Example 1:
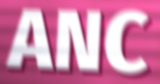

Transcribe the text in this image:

ANC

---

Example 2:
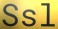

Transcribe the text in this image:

Ssl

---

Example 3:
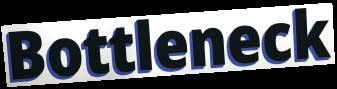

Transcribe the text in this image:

Bottleneck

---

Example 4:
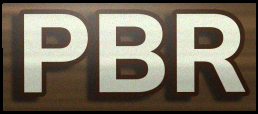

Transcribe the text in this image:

PBR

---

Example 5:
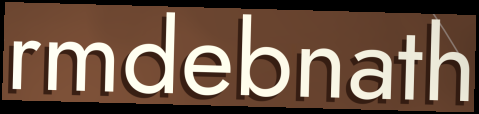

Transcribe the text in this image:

rmdebnath